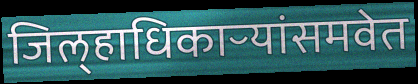
जिल्हाधिकाऱ्यांसमवेत